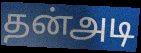
தன்அடி